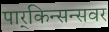
पार्किन्सन्सवर